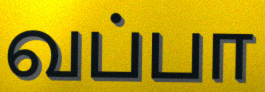
வப்பா